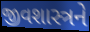
જીવશાસ્ત્રને